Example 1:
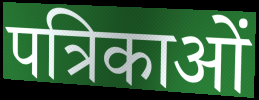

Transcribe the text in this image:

पत्रिकाओं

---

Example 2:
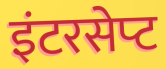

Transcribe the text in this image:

इंटरसेप्‍ट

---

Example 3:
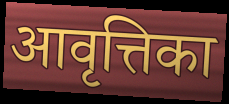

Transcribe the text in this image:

आवृत्तिका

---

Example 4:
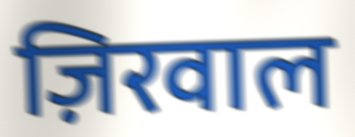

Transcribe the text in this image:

ज़िरवाल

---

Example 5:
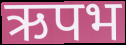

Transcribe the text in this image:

ऋपभ